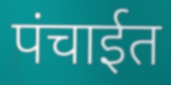
पंचाईत